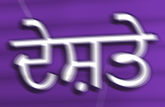
ਦੇਸ਼ਤੇ